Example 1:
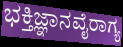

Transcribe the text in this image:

ಭಕ್ತಿಜ್ಞಾನವೈರಾಗ್ಯ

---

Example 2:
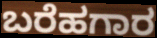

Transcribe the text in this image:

ಬರೆಹಗಾರ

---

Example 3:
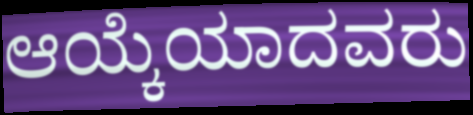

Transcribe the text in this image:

ಆಯ್ಕೆಯಾದವರು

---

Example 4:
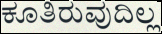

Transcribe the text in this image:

ಕೂತಿರುವುದಿಲ್ಲ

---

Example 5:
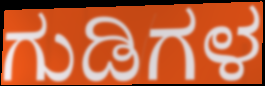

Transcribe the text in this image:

ಗುಡಿಗಳ